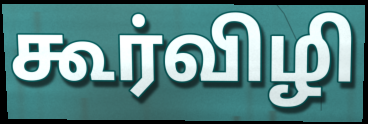
கூர்விழி